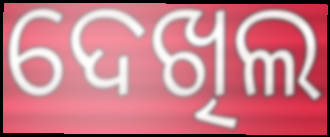
ଦେଖିଲ